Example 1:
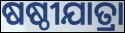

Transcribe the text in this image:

ଷଷ୍ଠୀଯାତ୍ରା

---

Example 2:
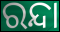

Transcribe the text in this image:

ରନ୍ଦା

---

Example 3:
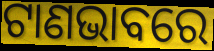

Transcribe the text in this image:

ଟାଣଭାବରେ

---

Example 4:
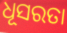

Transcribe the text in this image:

ଧୂସରତା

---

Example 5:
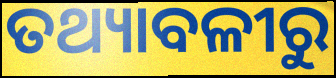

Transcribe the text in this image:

ତଥ୍ୟାବଳୀରୁ